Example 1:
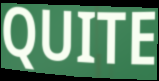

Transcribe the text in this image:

QUITE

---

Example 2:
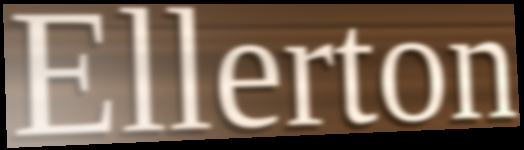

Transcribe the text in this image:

Ellerton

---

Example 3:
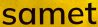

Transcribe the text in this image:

samet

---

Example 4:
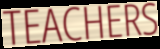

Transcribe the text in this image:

TEACHERS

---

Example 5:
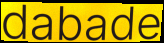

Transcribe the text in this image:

dabade